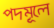
পদমূলে